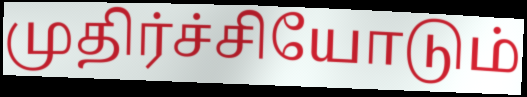
முதிர்ச்சியோடும்